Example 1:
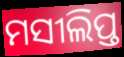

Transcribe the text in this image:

ମସୀଲିପ୍ତ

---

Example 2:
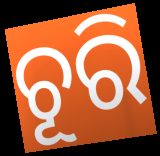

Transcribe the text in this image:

ଚୂରି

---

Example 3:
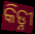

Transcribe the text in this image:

କିଡ୍ନୀ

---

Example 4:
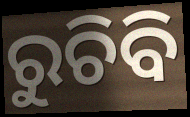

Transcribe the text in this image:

ରୁଚିବି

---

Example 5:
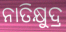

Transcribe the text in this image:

ନାତିକ୍ଷୁଦ୍ର